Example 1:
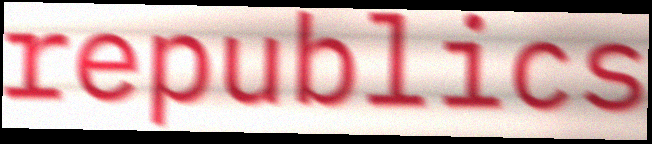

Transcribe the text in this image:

republics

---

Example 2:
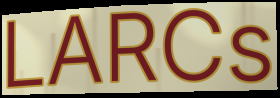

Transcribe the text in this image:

LARCs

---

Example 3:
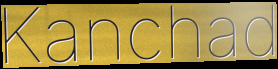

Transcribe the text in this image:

Kanchad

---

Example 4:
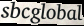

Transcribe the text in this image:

sbcglobal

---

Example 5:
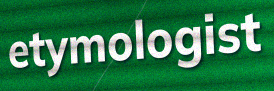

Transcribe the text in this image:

etymologist